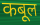
कबूल